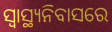
ସ୍ଵାସ୍ଥ୍ୟନିବାସରେ